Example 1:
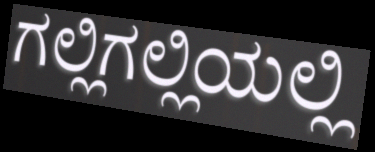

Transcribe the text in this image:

ಗಲ್ಲಿಗಲ್ಲಿಯಲ್ಲಿ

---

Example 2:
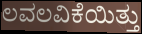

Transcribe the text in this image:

ಲವಲವಿಕೆಯಿತ್ತು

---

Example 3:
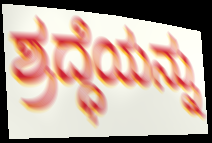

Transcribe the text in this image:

ಶ್ರದ್ಧೆಯನ್ನು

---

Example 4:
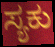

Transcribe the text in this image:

ಸ್ಯಕು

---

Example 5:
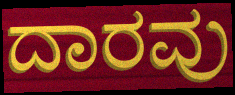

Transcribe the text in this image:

ದಾರವು